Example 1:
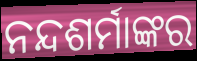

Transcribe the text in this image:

ନନ୍ଦଶର୍ମାଙ୍କର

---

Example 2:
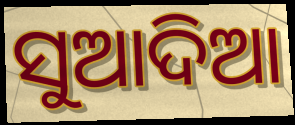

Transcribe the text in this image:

ସୁଆଦିଆ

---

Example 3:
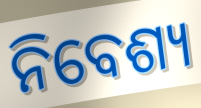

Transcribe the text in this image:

ନିବେଶ୍ୟ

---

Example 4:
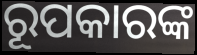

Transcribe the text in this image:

ରୂପକାରଙ୍କ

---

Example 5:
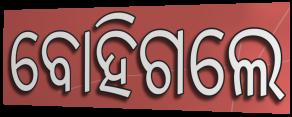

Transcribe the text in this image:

ବୋହିଗଲେ